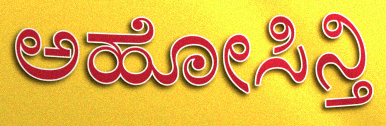
ಅಹೋಸಿನ್ತಿ